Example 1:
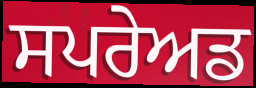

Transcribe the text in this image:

ਸਪਰੇਅਡ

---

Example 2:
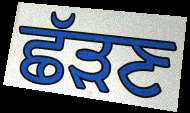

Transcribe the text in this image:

ਛੱੜਣ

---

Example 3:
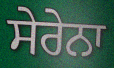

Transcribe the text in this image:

ਸੇਰੇਨਾ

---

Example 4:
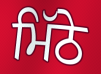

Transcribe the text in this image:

ਮਿੱਠੇ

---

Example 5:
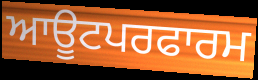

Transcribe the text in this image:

ਆਊਟਪਰਫਾਰਮ